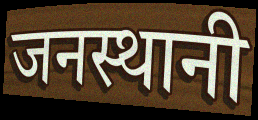
जनस्थानी